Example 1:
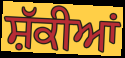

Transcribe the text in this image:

ਸ਼ੱਕੀਆਂ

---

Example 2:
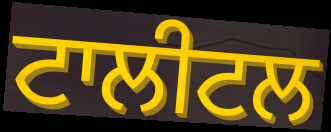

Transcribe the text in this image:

ਟਾਲੀਟਲ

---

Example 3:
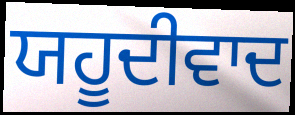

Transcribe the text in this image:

ਯਹੂਦੀਵਾਦ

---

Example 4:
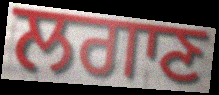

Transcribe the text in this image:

ਲਗਾਣ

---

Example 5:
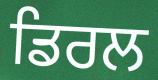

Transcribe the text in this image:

ਡਿਰਲ